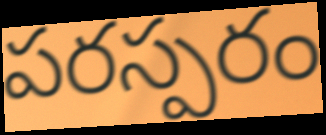
పరస్పరం